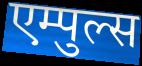
एम्पुल्स